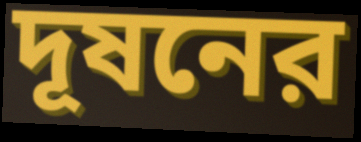
দূষনের